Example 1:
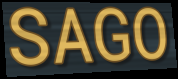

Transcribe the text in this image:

SAGO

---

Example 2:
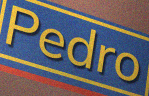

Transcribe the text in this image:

Pedro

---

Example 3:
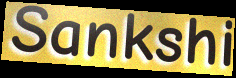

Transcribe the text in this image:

Sankshi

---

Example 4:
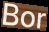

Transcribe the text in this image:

Bor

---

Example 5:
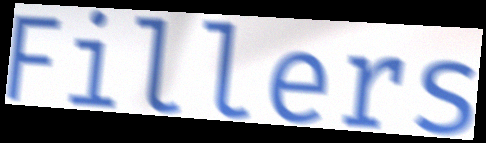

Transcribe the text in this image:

Fillers